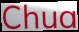
Chua